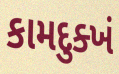
કામદુક્ખં